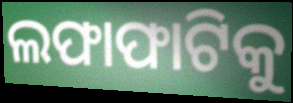
ଲଫାଫାଟିକୁ